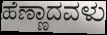
ಹೆಣ್ಣಾದವಳು